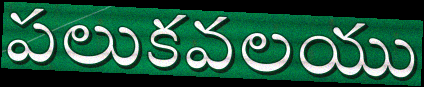
పలుకవలయు